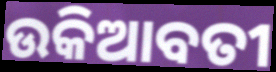
ଉକିଆବତୀ